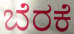
ಬೆರಕೆ